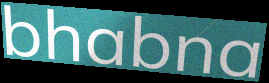
bhabna